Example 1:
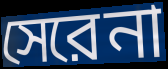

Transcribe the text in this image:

সেরেনা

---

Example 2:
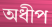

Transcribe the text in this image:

অধীপ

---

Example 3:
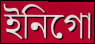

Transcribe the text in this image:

ইনিগো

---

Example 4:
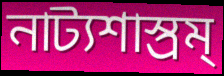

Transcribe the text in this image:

নাট্যশাস্ত্রম্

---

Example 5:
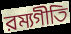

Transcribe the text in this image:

রম্যগীতি